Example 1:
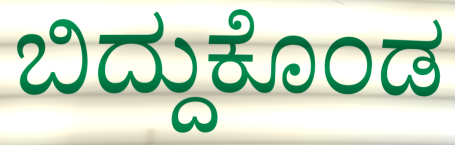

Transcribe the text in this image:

ಬಿದ್ದುಕೊಂಡ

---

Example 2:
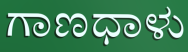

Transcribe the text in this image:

ಗಾಣಧಾಳು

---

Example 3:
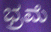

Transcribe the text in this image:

ಭ್ರಮೆ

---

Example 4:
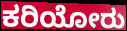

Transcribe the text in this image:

ಕರಿಯೋರು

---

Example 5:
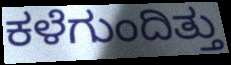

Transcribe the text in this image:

ಕಳೆಗುಂದಿತ್ತು